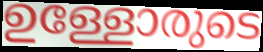
ഉള്ളോരുടെ